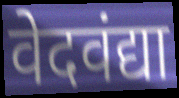
वेदवंद्या